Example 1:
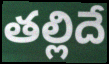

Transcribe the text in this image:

తల్లిదే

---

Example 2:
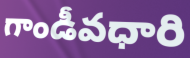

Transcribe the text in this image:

గాండీవధారి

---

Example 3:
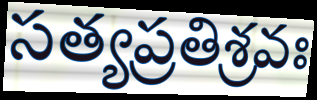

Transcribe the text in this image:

సత్యప్రతిశ్రవః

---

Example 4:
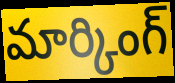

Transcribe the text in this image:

మార్కింగ్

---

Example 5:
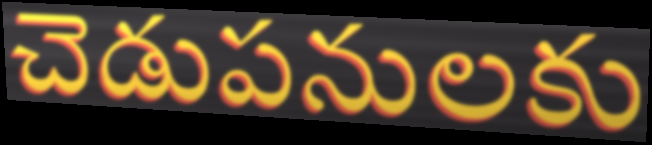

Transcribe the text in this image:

చెడుపనులకు